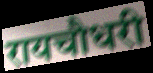
रायचौधरी